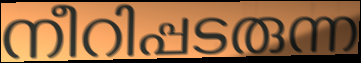
നീറിപ്പടരുന്ന